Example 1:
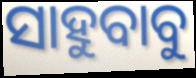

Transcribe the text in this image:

ସାହୁବାବୁ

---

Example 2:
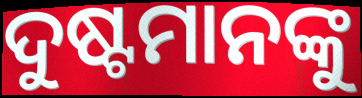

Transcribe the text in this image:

ଦୁଷ୍ଟମାନଙ୍କୁ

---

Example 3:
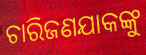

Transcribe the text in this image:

ଚାରିଜଣଯାକଙ୍କୁ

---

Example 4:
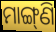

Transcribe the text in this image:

ମାଙ୍ଗ୍‌ଣି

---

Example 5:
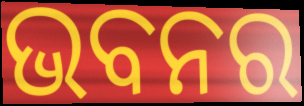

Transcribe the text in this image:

ଭବନର